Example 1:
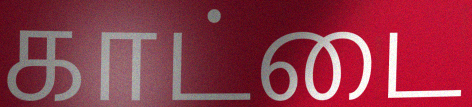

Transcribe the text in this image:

காட்டை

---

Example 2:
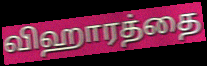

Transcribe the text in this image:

விஹாரத்தை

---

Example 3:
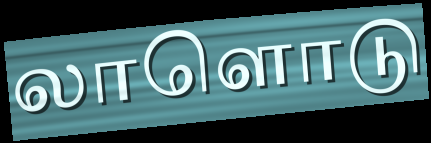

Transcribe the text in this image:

லாளொடு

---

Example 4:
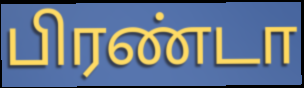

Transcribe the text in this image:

பிரண்டா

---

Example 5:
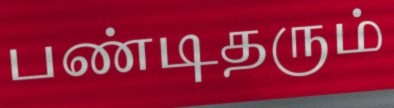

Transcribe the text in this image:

பண்டிதரும்